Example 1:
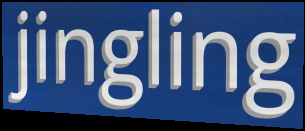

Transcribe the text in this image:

jingling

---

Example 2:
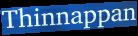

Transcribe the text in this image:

Thinnappan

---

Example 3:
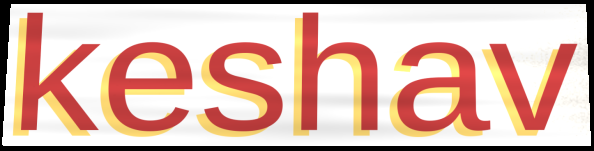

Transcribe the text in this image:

keshav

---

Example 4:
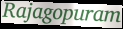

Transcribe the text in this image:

Rajagopuram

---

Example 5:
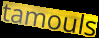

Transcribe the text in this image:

tamouls